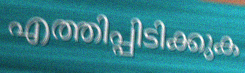
എത്തിപ്പിടിക്കുക